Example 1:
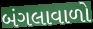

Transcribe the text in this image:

બંગલાવાળો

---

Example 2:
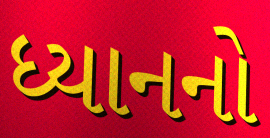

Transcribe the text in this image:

ધ્યાનનો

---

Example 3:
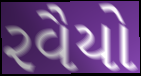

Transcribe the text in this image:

રવૈયો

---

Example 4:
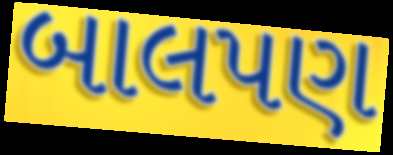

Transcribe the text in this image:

બાલપણ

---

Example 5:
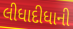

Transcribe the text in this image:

લીધાદીધાની